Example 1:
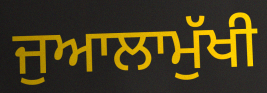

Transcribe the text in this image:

ਜੁਆਲਾਮੁੱਖੀ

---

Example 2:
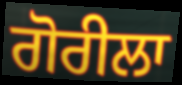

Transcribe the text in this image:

ਗੋਰੀਲਾ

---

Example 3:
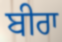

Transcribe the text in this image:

ਬੀਰਾ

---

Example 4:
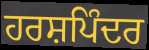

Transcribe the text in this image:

ਹਰਸ਼ਪਿੰਦਰ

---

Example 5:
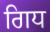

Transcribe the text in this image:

ਗਿਧ